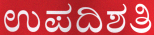
ಉಪದಿಶತಿ